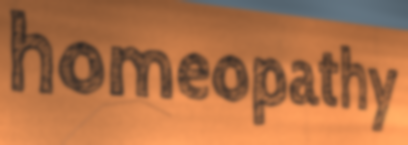
homeopathy